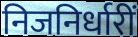
निजनिर्धारीं